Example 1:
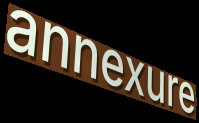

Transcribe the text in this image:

annexure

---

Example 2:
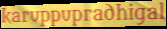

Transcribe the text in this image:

karuppupradhigal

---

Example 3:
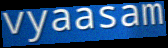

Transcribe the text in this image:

vyaasam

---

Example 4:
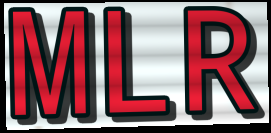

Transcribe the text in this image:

MLR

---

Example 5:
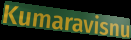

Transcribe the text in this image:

Kumaravisnu